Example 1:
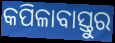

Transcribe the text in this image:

କପିଳାବାସ୍ତୁର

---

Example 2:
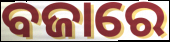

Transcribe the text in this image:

ବଜାରେ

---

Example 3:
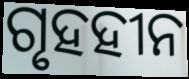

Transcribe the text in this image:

ଗୃହହୀନ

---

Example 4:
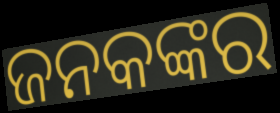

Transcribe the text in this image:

ଜନକଙ୍କର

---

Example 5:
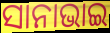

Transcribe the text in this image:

ସାନାଭାଇ